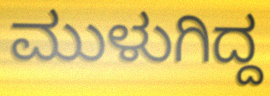
ಮುಳುಗಿದ್ದ